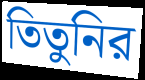
তিতুনির